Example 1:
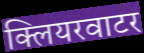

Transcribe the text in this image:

क्लियरवाटर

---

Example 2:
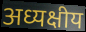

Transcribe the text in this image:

अध्यक्षीय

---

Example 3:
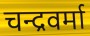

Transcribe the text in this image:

चन्द्रवर्मा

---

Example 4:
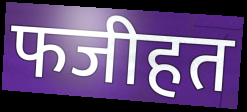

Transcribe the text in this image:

फजीहत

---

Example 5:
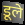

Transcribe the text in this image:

डूले